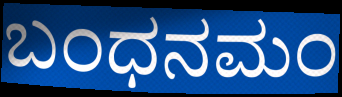
ಬಂಧನಮಂ